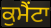
ਕੁਮੈਂਟਾ